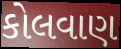
કોલવાણ